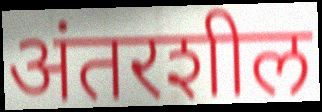
अंतरशील